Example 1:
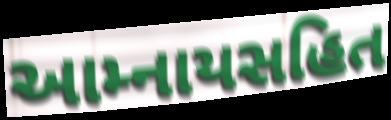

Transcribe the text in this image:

આમ્નાયસહિત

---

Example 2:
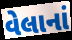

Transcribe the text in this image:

વેલાનાં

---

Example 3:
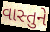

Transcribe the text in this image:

વાસ્તુને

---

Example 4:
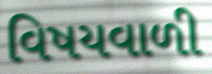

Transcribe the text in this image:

વિષયવાળી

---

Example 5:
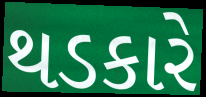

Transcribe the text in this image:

થડકારે